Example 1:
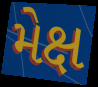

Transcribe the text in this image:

મેક્ષ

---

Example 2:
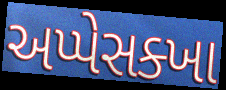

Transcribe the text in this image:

અપ્પેસક્ખા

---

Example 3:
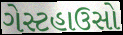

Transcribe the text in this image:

ગેસ્ટહાઉસો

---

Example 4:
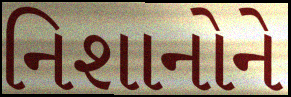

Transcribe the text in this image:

નિશાનોને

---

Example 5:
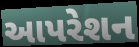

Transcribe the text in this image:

આપરેશન